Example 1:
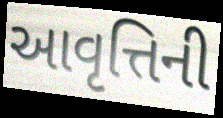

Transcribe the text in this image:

આવૃત્તિની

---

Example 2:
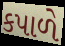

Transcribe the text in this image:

કપાળે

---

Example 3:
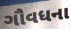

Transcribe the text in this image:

ગૌવધના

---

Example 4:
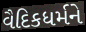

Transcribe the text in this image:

વૈદિકધર્મને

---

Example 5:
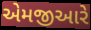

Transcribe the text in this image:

એમજીઆરે